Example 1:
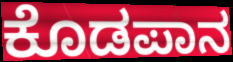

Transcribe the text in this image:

ಕೊಡಪಾನ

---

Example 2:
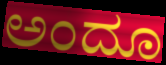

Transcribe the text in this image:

ಅಂದೂ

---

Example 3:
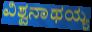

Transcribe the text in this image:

ವಿಶ್ವನಾಥಯ್ಯ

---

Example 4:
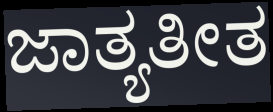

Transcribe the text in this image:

ಜಾತ್ಯತೀತ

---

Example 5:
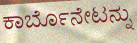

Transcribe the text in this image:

ಕಾರ್ಬೊನೇಟನ್ನು